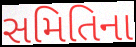
સમિતિના